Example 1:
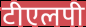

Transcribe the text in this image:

टीएलपी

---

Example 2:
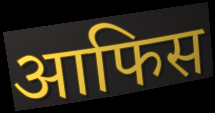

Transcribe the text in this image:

आफिस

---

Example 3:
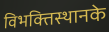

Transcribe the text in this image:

विभक्तिस्थानके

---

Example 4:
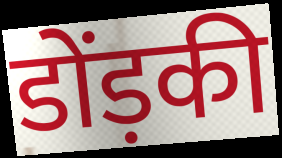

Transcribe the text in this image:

डोंड़की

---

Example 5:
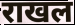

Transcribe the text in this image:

राखल